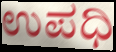
ಉಪಧಿ